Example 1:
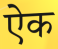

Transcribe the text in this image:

ऐक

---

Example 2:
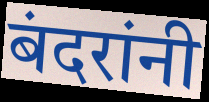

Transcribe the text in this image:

बंदरांनी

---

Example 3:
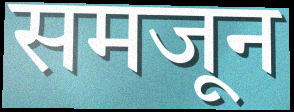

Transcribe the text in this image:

समजून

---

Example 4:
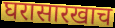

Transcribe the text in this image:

घरासारखाच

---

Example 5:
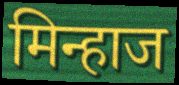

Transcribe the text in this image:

मिन्हाज